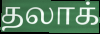
தலாக்